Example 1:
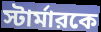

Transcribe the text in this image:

স্টার্মারকে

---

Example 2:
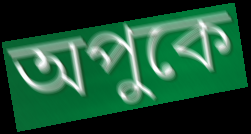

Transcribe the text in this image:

অপুকে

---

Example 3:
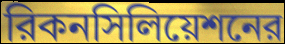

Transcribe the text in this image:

রিকনসিলিয়েশনের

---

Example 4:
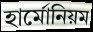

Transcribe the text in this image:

হার্মোনিয়ম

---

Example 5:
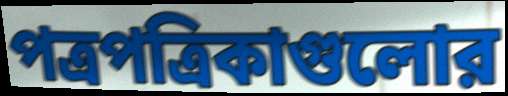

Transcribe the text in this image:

পত্রপত্রিকাগুলোর